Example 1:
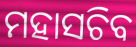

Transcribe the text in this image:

ମହାସଚିବ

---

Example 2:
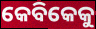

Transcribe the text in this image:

କେବିକେକୁ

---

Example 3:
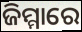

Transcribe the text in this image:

ଜିମ୍ମାରେ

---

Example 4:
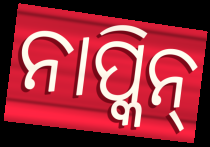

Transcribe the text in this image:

ନାପ୍କିନ୍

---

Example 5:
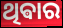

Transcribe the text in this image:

ଥିଵାର